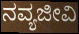
ನವ್ಯಜೀವಿ